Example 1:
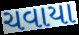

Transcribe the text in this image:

ચવાયા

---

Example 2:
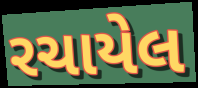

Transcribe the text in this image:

રચાયેલ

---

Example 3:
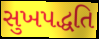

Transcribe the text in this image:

સુખપદ્ધતિ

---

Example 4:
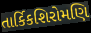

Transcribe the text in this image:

તાર્કિકશિરોમણિ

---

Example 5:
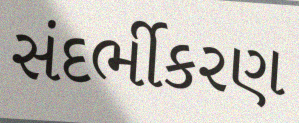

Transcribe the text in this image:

સંદર્ભીકરણ